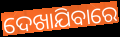
ଦେଖାଯିବାରେ